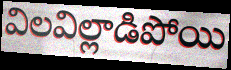
విలవిల్లాడిపోయి